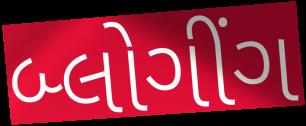
બ્લોગીંગ